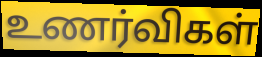
உணர்விகள்